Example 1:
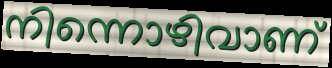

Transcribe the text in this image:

നിന്നൊഴിവാണ്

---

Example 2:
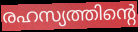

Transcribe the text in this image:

രഹസ്യത്തിന്റെ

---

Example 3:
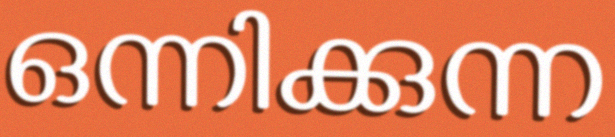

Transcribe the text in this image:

ഒന്നിക്കുന്ന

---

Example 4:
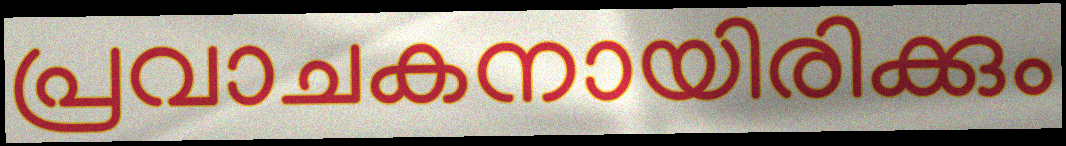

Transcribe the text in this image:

പ്രവാചകനായിരിക്കും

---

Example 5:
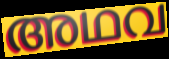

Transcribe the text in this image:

അഥവ